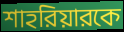
শাহরিয়ারকে